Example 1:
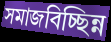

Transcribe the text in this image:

সমাজবিচ্ছিন্ন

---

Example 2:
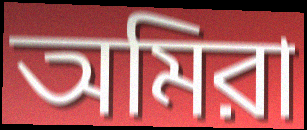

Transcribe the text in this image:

অমিরা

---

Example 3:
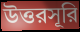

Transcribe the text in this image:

উত্তরসূরি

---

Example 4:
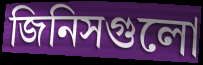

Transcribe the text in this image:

জিনিসগুলো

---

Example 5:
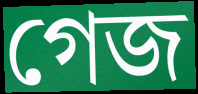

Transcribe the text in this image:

গেজ